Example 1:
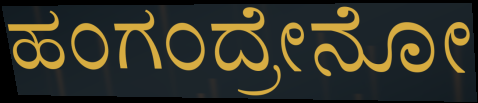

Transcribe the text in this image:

ಹಂಗಂದ್ರೇನೋ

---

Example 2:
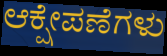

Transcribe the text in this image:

ಆಕ್ಷೇಪಣೆಗಳು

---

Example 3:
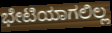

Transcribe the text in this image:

ಭೇಟಿಯಾಗಲಿಲ್ಲ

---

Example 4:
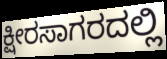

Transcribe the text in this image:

ಕ್ಷೀರಸಾಗರದಲ್ಲಿ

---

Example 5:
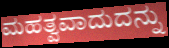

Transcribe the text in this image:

ಮಹತ್ವವಾದುದನ್ನು